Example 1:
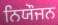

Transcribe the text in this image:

ਨਿਯੌਜਨ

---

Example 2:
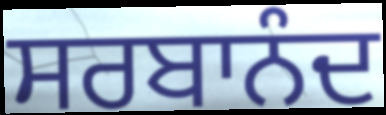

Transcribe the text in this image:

ਸਰਬਾਨੰਦ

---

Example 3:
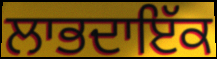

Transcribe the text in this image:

ਲਾਭਦਾਇੱਕ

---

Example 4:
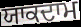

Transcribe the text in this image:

ਯਾਕਦਾਮ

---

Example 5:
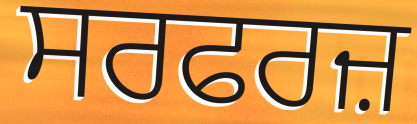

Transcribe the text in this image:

ਸਰਫਰਜ਼